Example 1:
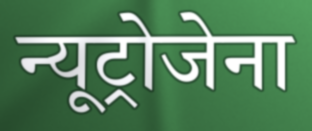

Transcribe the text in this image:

न्यूट्रोजेना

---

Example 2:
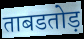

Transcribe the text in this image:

ताबडतोड़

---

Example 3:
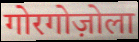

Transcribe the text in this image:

गोरगोज़ोला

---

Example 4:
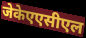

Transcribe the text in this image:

जेकेएएसीएल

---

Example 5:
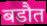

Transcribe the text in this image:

बडौत